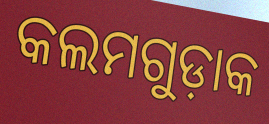
କଲମଗୁଡ଼ାକ